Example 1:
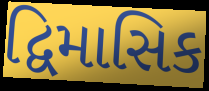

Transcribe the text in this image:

દ્વિમાસિક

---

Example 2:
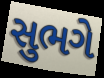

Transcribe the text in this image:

સુભગે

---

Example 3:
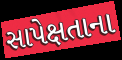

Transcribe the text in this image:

સાપેક્ષતાના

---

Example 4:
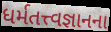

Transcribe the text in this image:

ધર્મતત્ત્વજ્ઞાનના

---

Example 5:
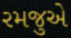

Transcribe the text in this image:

રમજુએ